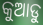
କୁଆଡୁ